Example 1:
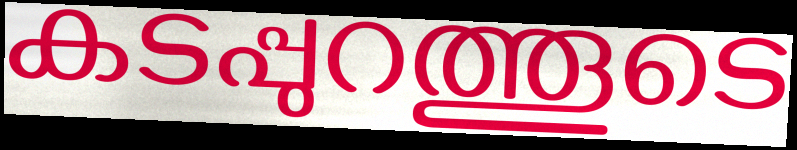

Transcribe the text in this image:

കടപ്പുറത്തൂടെ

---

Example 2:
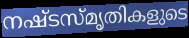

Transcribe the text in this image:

നഷ്ടസ്മൃതികളുടെ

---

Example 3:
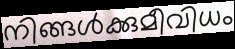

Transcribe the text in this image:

നിങ്ങൾക്കുമീവിധം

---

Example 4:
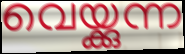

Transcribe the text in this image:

വെയ്ക്കുന്ന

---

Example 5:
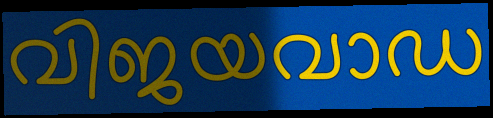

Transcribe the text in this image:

വിജയവാഡ